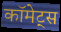
कॉमेट्स